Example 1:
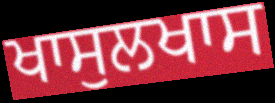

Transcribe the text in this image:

ਖਾਸੁਲਖਾਸ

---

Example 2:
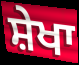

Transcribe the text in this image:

ਸ਼ੇਖਾ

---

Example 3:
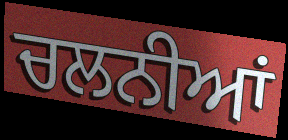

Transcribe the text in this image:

ਚਲਨੀਆਂ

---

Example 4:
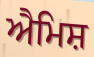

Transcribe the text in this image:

ਐਮਿਸ਼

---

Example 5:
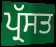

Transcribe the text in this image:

ਪ੍ਰੱਸਤ